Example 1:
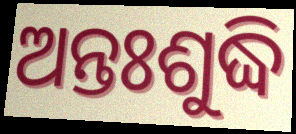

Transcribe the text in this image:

ଅନ୍ତଃଶୁଦ୍ଧି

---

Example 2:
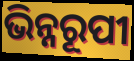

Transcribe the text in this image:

ଭିନ୍ନରୂପୀ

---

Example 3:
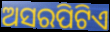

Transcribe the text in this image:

ଅସରପିଟିଏ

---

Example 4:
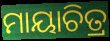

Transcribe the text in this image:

ମାୟାଚିତ୍ର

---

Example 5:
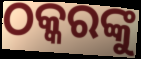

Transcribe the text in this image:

ଠକ୍କରଙ୍କୁ